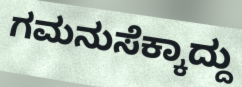
ಗಮನುಸೆಕ್ಕಾದ್ದು